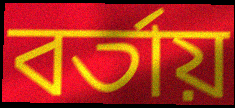
বর্তায়